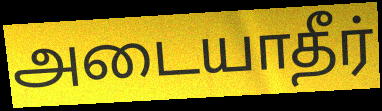
அடையாதீர்